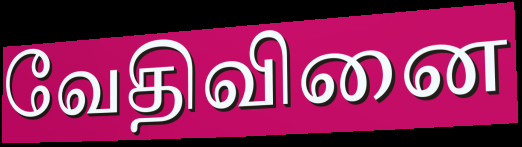
வேதிவினை